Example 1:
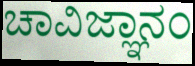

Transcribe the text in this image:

ಚಾವಿಜ್ಞಾನಂ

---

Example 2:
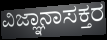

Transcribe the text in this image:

ವಿಜ್ಞಾನಾಸಕ್ತರ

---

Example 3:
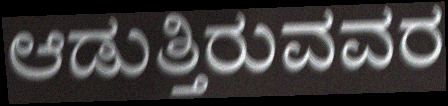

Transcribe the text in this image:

ಆಡುತ್ತಿರುವವರ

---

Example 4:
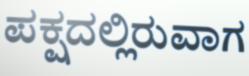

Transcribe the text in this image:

ಪಕ್ಷದಲ್ಲಿರುವಾಗ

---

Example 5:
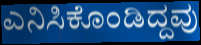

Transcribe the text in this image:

ಎನಿಸಿಕೊಂಡಿದ್ದವು